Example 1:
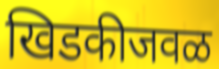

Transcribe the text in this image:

खिडकीजवळ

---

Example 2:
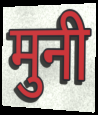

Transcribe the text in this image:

मुनी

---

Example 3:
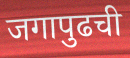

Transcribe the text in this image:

जगापुढची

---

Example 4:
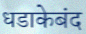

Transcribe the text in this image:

धडाकेबंद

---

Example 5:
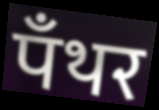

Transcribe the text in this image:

पँथर